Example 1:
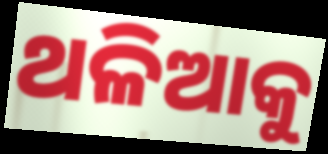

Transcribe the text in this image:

ଥଳିଆକୁ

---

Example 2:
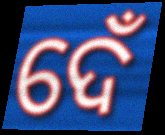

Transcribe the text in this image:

ଦେଁ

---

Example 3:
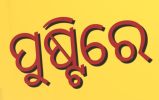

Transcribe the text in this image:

ପୁଷ୍ଟିରେ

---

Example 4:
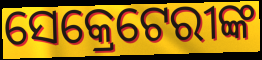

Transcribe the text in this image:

ସେକ୍ରେଟେରୀଙ୍କ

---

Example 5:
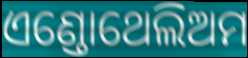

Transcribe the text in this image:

ଏଣ୍ଡୋଥେଲିଅମ